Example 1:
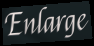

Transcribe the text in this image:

Enlarge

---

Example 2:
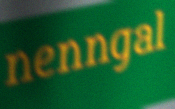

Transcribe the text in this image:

nenngal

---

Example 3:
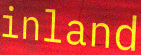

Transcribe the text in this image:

inland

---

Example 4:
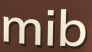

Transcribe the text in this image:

mib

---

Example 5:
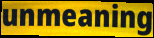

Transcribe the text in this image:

unmeaning